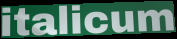
italicum